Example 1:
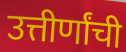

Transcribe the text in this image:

उत्तीर्णांची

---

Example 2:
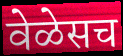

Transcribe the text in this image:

वेळेसच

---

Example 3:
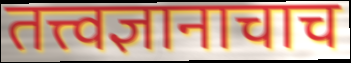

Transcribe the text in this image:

तत्त्वज्ञानाचाच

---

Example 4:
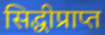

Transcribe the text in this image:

सिद्धीप्राप्त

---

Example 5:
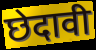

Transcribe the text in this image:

छेदावी